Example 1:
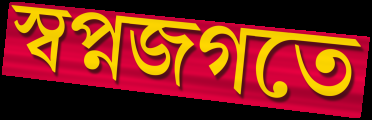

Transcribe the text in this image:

স্বপ্নজগতে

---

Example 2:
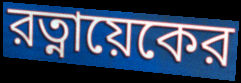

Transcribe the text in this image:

রত্নায়েকের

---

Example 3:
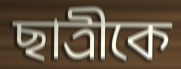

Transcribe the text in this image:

ছাত্রীকে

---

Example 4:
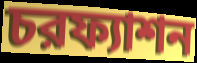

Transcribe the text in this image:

চরফ্যাশন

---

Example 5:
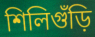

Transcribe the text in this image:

শিলিগুঁড়ি